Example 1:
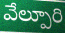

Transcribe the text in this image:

వేల్పూరి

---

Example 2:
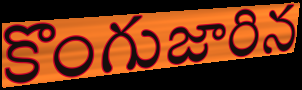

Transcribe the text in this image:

కొంగుజారిన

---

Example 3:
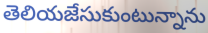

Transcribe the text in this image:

తెలియజేసుకుంటున్నాను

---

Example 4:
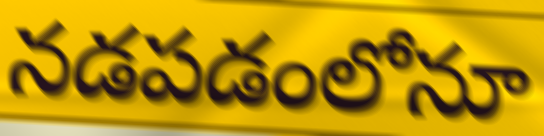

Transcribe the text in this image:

నడపడంలోనూ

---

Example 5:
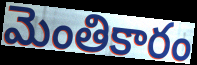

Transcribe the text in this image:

మెంతికారం